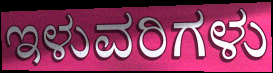
ಇಳುವರಿಗಳು